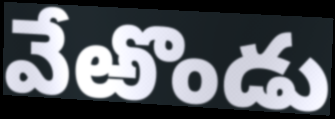
వేఱొండు